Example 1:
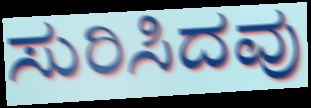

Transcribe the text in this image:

ಸುರಿಸಿದವು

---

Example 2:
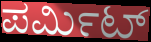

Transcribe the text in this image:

ಪರ್ಮಿಟ್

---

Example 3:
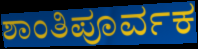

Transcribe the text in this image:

ಶಾಂತಿಪೂರ್ವಕ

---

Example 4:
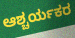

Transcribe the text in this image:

ಆಶ್ಚರ್ಯಕರ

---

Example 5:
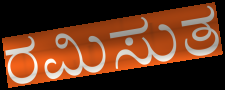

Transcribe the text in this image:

ರಮಿಸುತ